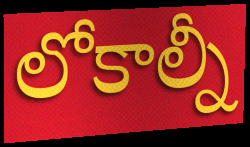
లోకాల్నీ